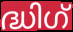
ദ്ധിഗ്